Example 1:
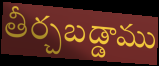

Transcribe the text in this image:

తీర్చబడ్డాము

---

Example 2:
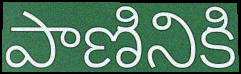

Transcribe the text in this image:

పాణినికి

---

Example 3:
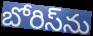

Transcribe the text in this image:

బోరిస్‌ను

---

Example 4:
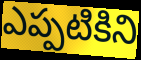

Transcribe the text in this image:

ఎప్పటికిని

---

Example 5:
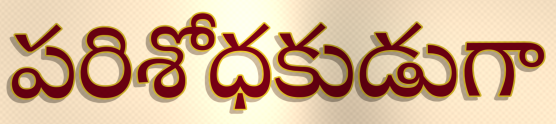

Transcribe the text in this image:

పరిశోధకుడుగా